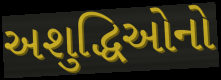
અશુદ્ધિઓનો